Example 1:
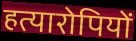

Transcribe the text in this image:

हत्‍यारोपियों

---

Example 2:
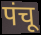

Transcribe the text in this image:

पंचू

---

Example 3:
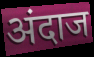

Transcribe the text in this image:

अंदाज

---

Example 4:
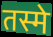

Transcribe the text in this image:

तस्मे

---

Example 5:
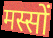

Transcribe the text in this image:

मस्सों